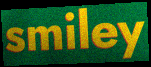
smiley